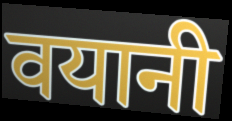
वयानी